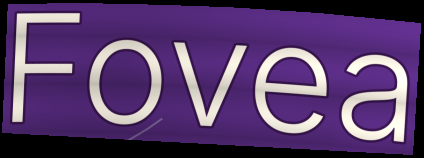
Fovea